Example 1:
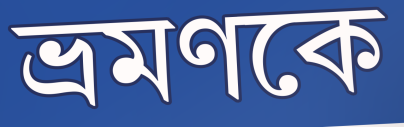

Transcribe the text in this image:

ভ্রমণকে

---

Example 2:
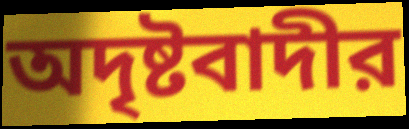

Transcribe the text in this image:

অদৃষ্টবাদীর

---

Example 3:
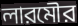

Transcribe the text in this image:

লারমৌর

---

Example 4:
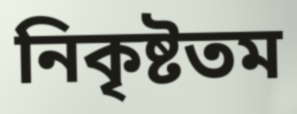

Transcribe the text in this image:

নিকৃষ্টতম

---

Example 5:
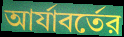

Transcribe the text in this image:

আর্যাবর্তের